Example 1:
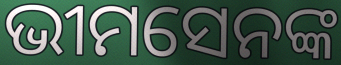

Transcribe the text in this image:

ଭୀମସେନଙ୍କ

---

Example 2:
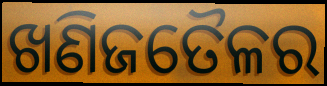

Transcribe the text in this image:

ଖଣିଜତୈଳର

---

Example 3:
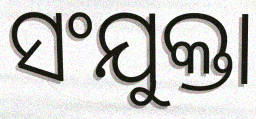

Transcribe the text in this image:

ସଂଯୁକ୍ତା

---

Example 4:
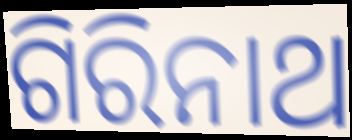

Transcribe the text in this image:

ଗିରିନାଥ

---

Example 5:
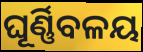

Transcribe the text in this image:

ଘୂର୍ଣ୍ଣିବଳୟ